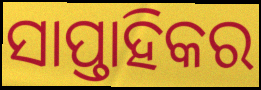
ସାପ୍ତାହିକର